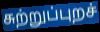
சுற்றுப்புறச்